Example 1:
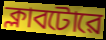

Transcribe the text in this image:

ক্লাবটোৱে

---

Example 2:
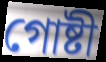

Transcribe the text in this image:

গোষ্টী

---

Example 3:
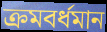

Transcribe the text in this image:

ক্ৰমবৰ্ধমান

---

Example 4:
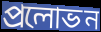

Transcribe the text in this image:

প্ৰলোভন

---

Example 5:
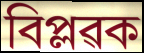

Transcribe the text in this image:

বিপ্লৱক